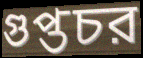
গুপ্তচর